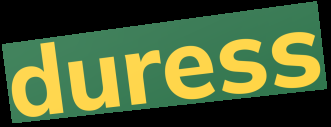
duress